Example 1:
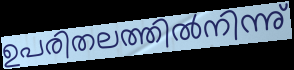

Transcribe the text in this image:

ഉപരിതലത്തിൽനിന്നു്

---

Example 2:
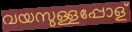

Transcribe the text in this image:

വയസുള്ളപ്പോള്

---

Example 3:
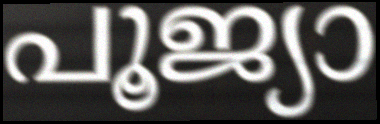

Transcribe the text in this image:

പൂജ്യാ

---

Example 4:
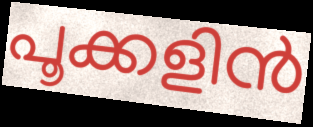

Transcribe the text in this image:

പൂക്കളിൻ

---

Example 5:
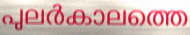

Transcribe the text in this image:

പുലർകാലത്തെ